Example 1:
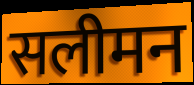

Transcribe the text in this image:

सलीमन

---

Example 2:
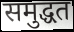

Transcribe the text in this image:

समुद्धत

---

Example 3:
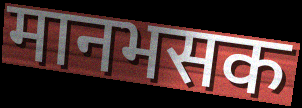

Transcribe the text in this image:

मानभसक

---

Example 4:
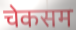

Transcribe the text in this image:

चेकसम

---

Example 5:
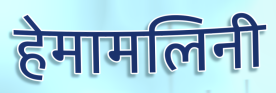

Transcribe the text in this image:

हेमामलिनी